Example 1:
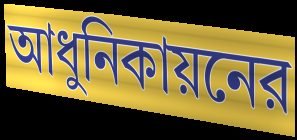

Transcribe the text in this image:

আধুনিকায়নের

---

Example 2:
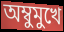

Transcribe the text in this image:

অম্বুমুখে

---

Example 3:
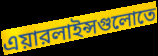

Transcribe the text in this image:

এয়ারলাইন্সগুলোতে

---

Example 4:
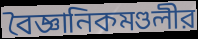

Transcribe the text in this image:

বৈজ্ঞানিকমণ্ডলীর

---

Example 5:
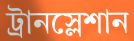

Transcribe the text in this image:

ট্রানস্লেশান